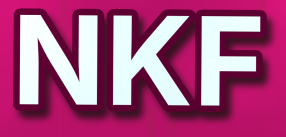
NKF